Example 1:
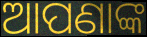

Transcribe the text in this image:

ଆପଣାଙ୍କ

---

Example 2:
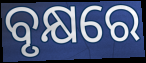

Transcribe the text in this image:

ବୃକ୍ଷରେ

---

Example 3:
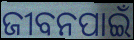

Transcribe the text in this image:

ଜୀବନପାଇଁ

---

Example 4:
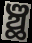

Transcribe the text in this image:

ଞ୍ଛ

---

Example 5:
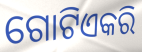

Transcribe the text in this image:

ଗୋଟିଏକରି